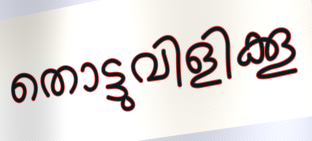
തൊട്ടുവിളിക്കൂ